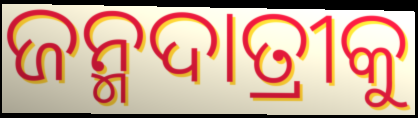
ଜନ୍ମଦାତ୍ରୀକୁ